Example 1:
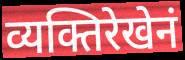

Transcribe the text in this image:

व्यक्तिरेखेनं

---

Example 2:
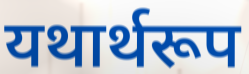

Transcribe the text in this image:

यथार्थरूप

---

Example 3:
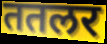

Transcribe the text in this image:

ततलर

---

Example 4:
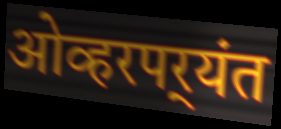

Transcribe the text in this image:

ओव्हरपर्यंत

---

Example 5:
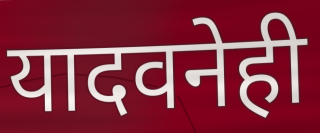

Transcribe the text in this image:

यादवनेही